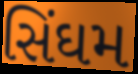
સિંઘમ